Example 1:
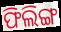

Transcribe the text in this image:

ଫିଲିଙ୍ଗ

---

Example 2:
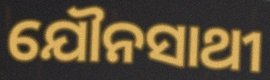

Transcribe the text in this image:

ଯୌନସାଥୀ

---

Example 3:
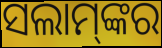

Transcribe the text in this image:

ସଲାମ୍‌ଙ୍କର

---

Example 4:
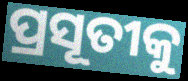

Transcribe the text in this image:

ପ୍ରସୂତୀକୁ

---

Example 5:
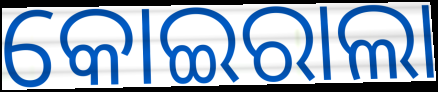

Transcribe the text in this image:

କୋଇରାଲା